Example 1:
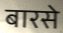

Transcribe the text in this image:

बारसे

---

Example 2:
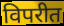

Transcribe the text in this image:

विपरीत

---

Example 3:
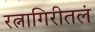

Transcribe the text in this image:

रत्नागिरीतलं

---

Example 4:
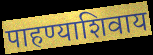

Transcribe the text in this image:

पाहण्याशिवाय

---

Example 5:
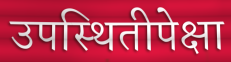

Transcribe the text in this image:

उपस्थितीपेक्षा